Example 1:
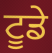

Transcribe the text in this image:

ਟੂਡੇ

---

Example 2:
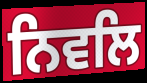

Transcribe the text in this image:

ਨਿਵਲਿ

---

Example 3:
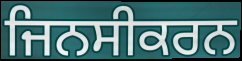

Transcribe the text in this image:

ਜਿਨਸੀਕਰਨ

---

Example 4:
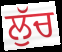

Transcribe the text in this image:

ਲੁੱਚ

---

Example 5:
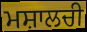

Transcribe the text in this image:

ਮਸ਼ਾਲਚੀ